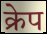
क्रेप